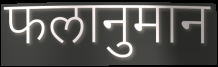
फलानुमान